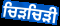
ਚਿੜਚਿੜੀ